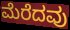
ಮೆರೆದವು